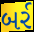
બર્ર